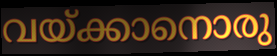
വയ്ക്കാനൊരു